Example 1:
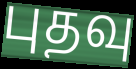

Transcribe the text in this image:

புதவு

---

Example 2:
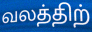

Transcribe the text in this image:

வலத்திற்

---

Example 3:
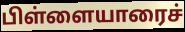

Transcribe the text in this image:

பிள்ளையாரைச்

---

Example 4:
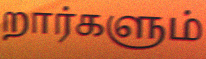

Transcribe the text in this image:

றார்களும்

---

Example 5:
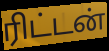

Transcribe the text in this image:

ரிட்டன்